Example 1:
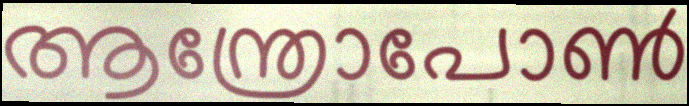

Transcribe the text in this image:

ആന്ത്രോപോൺ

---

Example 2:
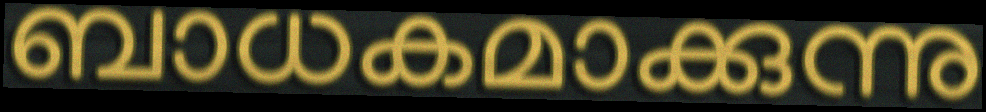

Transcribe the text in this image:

ബാധകമാക്കുന്നു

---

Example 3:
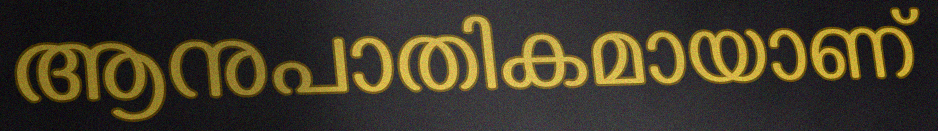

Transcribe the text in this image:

ആനുപാതികമായാണ്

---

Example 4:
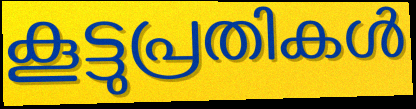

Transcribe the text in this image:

കൂട്ടുപ്രതികൾ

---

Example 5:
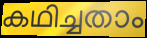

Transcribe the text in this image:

കഥിച്ചതാം